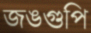
জঙগুপি